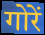
गोरें